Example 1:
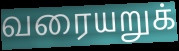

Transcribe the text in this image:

வரையறுக்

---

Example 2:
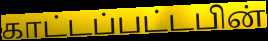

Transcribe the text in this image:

காட்டப்பட்டபின்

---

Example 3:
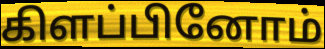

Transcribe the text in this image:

கிளப்பினோம்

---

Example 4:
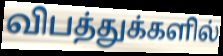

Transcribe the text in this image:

விபத்துக்களில்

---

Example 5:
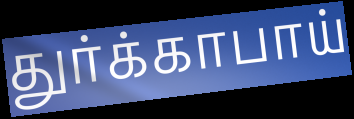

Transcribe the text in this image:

துர்க்காபாய்